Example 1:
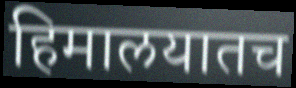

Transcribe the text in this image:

हिमालयातच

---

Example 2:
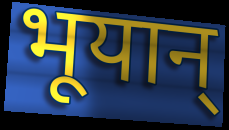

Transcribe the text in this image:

भूयान्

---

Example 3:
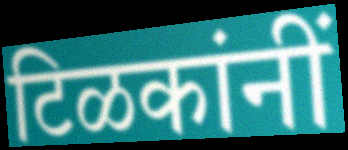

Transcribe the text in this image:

टिळकांनीं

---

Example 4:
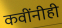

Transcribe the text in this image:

कवींनीही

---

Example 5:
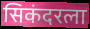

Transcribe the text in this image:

सिकंदरला